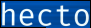
hecto